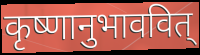
कृष्णानुभाववित्